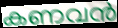
കണവൻ